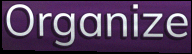
Organize